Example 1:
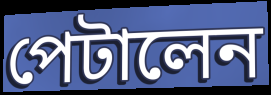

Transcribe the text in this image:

পেটালেন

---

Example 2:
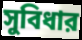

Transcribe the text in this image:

সুবিধার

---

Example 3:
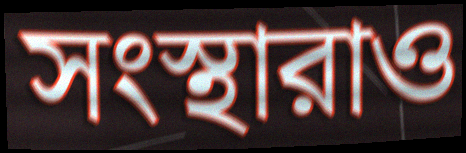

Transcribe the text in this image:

সংস্থারাও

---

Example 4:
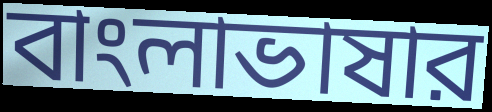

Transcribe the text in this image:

বাংলাভাষার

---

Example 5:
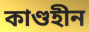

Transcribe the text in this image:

কাণ্ডহীন